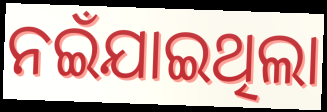
ନଇଁଯାଇଥିଲା